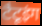
टैटूइंग